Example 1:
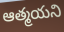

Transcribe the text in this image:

ఆత్మయని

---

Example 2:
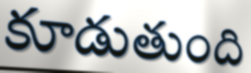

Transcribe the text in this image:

కూడుతుంది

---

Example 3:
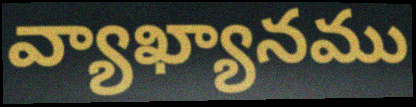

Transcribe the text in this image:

వ్యాఖ్యానము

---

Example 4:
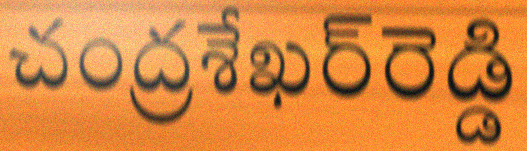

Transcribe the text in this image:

చంద్రశేఖర్‌రెడ్డి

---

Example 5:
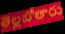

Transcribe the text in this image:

తెల్లబోతారు